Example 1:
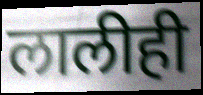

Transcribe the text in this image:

लालीही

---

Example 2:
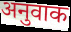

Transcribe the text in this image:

अनुवाक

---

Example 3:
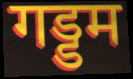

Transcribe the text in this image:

गड्डम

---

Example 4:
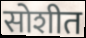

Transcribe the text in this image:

सोशीत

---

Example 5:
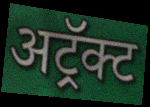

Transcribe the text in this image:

अट्रॅक्ट